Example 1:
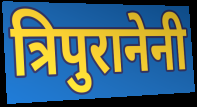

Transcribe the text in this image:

त्रिपुरानेनी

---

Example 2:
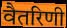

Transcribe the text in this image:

वैतरिणी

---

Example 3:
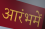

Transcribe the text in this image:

आरंभमें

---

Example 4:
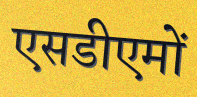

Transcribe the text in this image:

एसडीएमों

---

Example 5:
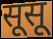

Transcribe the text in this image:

सूसू